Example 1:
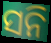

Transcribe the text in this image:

ସନି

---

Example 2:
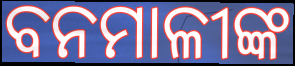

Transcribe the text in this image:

ବନମାଳୀଙ୍କ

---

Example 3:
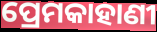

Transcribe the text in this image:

ପ୍ରେମକାହାଣୀ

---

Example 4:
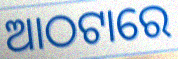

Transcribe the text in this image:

ଆଠଟାରେ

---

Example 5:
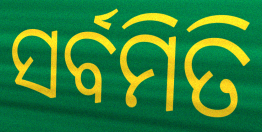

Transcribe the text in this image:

ସର୍ବମିତି